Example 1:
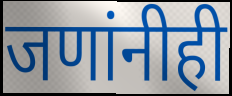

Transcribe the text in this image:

जणांनीही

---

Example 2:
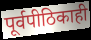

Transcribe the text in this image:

पूर्वपीठिकाही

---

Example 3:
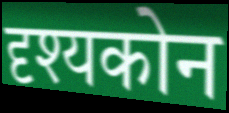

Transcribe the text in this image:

दृश्‍यकोन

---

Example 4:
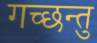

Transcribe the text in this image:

गच्छन्तु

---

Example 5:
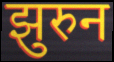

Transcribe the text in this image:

झुरुन